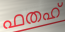
ഫതഹ്